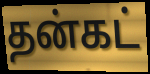
தன்கட்